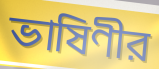
ভাষিণীর